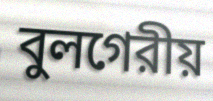
বুলগেরীয়